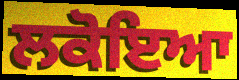
ਲਕੋਇਆ